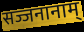
सज्जनानाम्